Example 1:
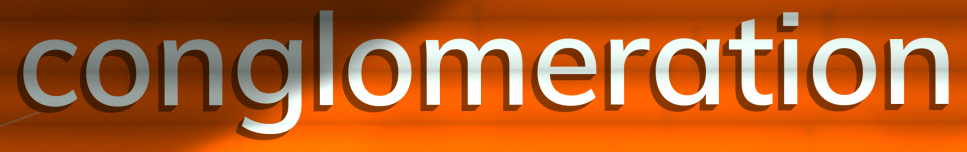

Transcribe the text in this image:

conglomeration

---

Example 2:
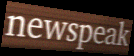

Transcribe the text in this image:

newspeak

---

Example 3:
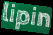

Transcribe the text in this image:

lipin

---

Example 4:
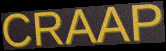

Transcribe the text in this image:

CRAAP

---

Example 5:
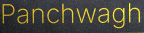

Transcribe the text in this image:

Panchwagh